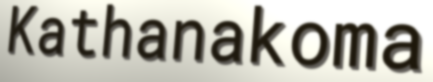
Kathanakoma